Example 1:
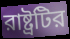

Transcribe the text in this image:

রাষ্ট্রটির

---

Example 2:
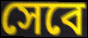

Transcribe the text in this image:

সেবে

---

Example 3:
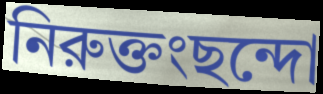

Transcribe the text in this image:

নিরুক্তংছন্দো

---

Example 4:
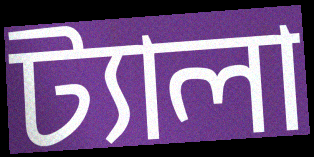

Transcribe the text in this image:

ট্যালা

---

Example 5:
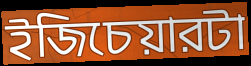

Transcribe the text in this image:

ইজিচেয়ারটা